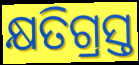
କ୍ଷତିଗ୍ରସ୍ତ